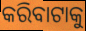
କରିବାଟାକୁ